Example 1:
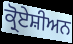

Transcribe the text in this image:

ਕ੍ਰੋਏਸ਼ੀਅਨ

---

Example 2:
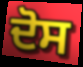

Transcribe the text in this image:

ਦੋਸ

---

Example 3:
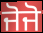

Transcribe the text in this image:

ਜੋਜੋ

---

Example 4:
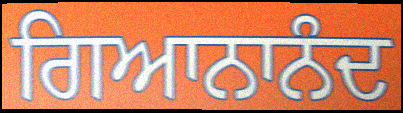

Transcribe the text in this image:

ਗਿਆਨਾਨੰਦ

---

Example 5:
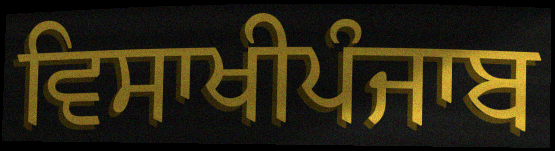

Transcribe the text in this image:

ਵਿਸਾਖੀਪੰਜਾਬ